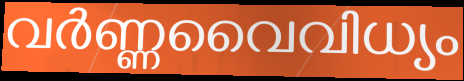
വർണ്ണവൈവിധ്യം